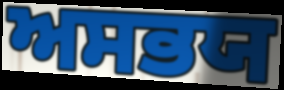
ਅਸਭਯ